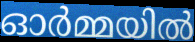
ഓർമ്മയിൽ